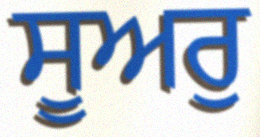
ਸੂਅਰੁ